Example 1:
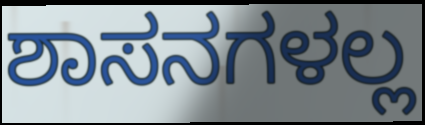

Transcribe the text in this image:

ಶಾಸನಗಳಲ್ಲ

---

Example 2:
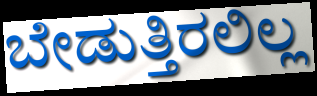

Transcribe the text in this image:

ಬೇಡುತ್ತಿರಲಿಲ್ಲ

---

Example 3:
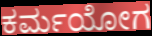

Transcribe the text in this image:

ಕರ್ಮಯೋಗ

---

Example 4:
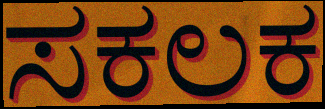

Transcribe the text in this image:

ಸಕಲಕ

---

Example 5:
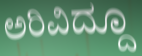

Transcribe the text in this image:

ಅರಿವಿದ್ದೂ